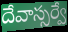
దేవాస్సర్వే